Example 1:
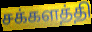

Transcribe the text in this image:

சக்களத்தி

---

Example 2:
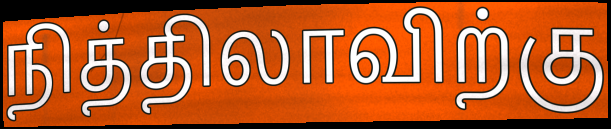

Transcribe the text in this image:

நித்திலாவிற்கு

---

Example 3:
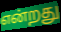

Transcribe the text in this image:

என்றது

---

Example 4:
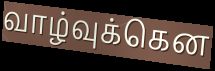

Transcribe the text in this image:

வாழ்வுக்கென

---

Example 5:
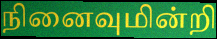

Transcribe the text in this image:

நினைவுமின்றி